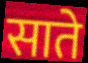
साते